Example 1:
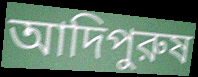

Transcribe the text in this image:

আদিপুরুষ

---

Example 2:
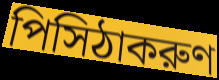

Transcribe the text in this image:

পিসিঠাকরুণ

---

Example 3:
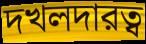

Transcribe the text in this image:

দখলদারত্ব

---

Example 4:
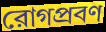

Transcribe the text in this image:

রোগপ্রবণ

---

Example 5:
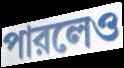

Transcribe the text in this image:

পারলেও